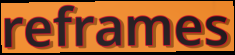
reframes